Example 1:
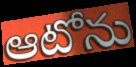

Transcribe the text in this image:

ఆటోను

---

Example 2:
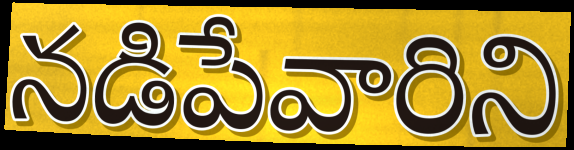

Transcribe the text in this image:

నడిపేవారిని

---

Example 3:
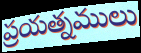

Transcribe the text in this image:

ప్రయత్నములు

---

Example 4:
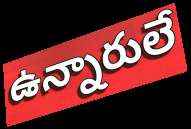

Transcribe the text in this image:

ఉన్నారులే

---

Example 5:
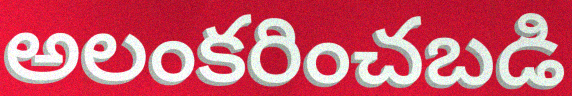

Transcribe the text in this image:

అలంకరించబడి